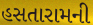
હસતારામની